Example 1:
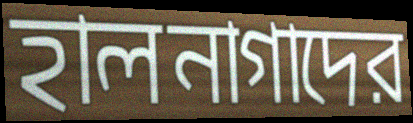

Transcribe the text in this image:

হালনাগাদের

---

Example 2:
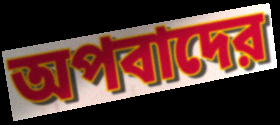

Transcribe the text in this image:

অপবাদের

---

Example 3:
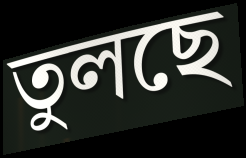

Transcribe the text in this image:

তুলছে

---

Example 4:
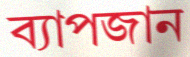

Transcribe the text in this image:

ব্যাপজান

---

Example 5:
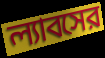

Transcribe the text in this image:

ল্যাবসের